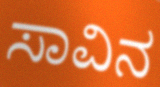
ಸಾವಿನ